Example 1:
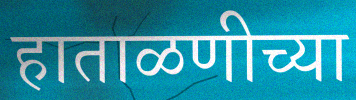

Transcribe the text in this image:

हाताळणीच्या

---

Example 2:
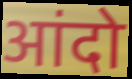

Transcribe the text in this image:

आंदो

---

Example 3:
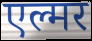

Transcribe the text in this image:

एल्मर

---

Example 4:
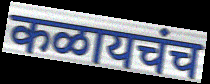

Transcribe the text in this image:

कळायचंच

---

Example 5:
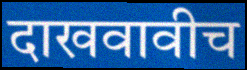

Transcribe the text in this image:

दाखवावीच